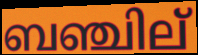
ബഞ്ചില്